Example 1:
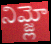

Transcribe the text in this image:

నిమ్జ్లో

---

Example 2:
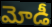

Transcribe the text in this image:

మోడీ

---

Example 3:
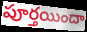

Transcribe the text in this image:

పూర్తయిందా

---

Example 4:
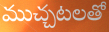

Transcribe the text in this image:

ముచ్చటలతో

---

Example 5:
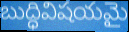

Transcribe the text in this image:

బుద్ధివిషయమై